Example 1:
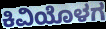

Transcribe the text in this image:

ಕಿವಿಯೊಳಗ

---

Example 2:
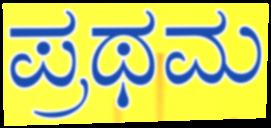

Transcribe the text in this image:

ಪ್ರಥಮ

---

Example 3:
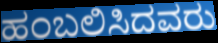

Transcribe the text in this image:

ಹಂಬಲಿಸಿದವರು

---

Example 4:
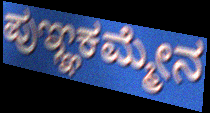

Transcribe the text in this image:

ಪುಞ್ಞಕಮ್ಮೇನ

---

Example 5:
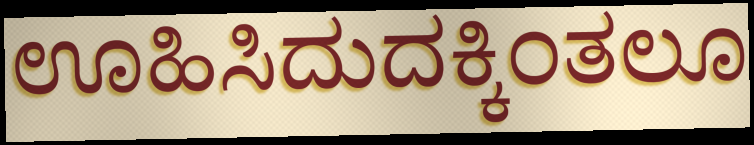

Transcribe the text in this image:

ಊಹಿಸಿದುದಕ್ಕಿಂತಲೂ